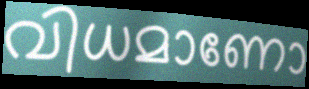
വിധമാണോ